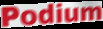
Podium